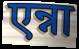
एन्ना